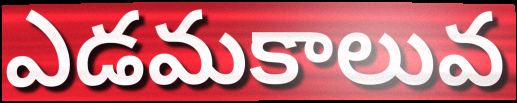
ఎడమకాలువ